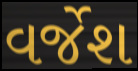
વર્જેશ